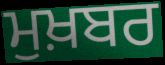
ਮੁਖ਼ਬਰ